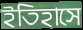
ইতিহাসে